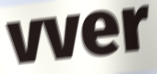
vver